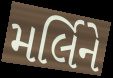
મર્લિને